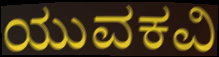
ಯುವಕವಿ